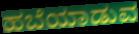
ಹಬೆಯಾಡುವ